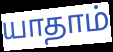
யாதாம்